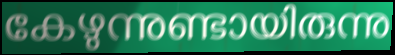
കേഴുന്നുണ്ടായിരുന്നു